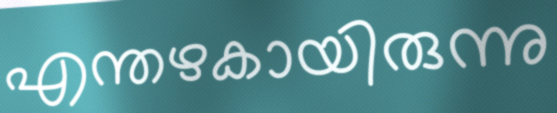
എന്തഴകായിരുന്നു